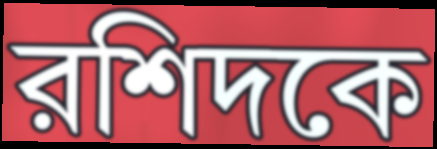
রশিদকে